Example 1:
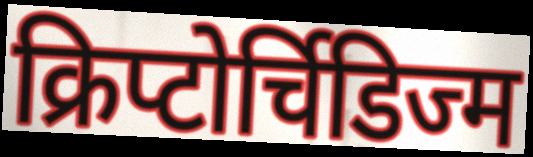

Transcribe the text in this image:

क्रिप्टोर्चिडिज्म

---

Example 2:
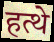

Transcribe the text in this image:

हत्थे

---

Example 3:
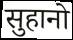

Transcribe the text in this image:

सुहानो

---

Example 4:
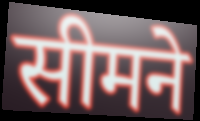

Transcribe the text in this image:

सीमने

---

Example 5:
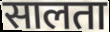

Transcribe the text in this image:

सालता